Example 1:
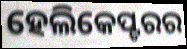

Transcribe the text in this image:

ହେଲିକେପ୍ଟରର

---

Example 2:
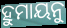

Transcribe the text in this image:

ହୁମାୟନୁ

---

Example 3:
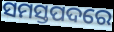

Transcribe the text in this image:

ସମସ୍ତପଦରେ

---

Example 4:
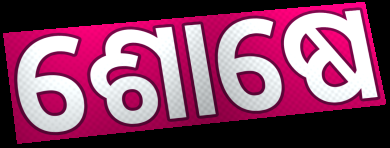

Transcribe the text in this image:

ଶୋଷେ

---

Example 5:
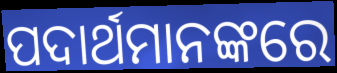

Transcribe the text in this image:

ପଦାର୍ଥମାନଙ୍କରେ